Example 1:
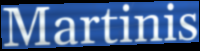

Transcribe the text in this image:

Martinis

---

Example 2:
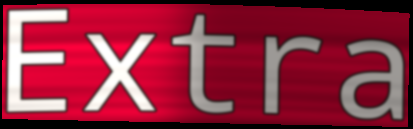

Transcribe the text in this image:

Extra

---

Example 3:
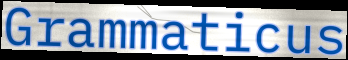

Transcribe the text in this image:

Grammaticus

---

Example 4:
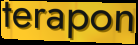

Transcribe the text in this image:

terapon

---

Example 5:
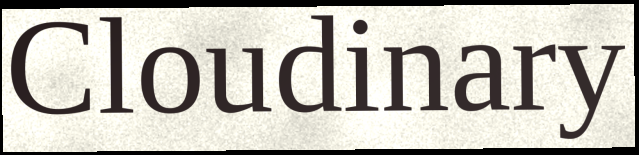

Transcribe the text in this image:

Cloudinary